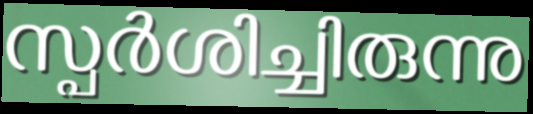
സ്പർശിച്ചിരുന്നു